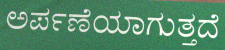
ಅರ್ಪಣೆಯಾಗುತ್ತದೆ